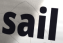
sail